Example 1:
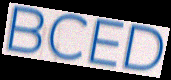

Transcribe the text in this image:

BCED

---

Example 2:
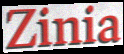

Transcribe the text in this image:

Zinia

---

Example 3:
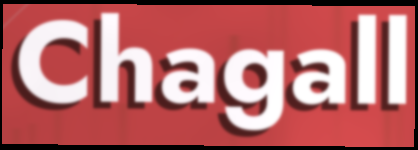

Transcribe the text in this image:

Chagall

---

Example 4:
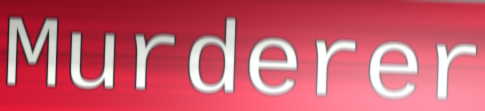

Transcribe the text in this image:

Murderer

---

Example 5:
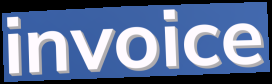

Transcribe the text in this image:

invoice